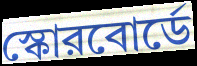
স্কোরবোর্ডে